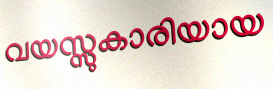
വയസ്സുകാരിയായ